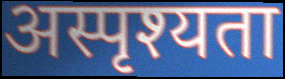
अस्पृश्यता